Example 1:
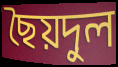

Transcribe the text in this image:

ছৈয়দুল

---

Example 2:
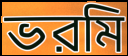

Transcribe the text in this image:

ভরমি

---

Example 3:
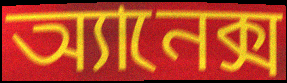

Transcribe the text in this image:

অ্যানেক্স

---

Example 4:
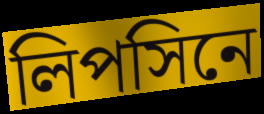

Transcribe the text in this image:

লিপসিনে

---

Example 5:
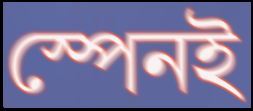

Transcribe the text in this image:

স্পেনই